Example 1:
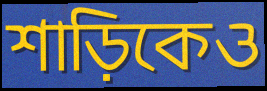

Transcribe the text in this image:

শাড়িকেও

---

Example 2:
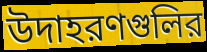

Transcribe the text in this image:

উদাহরণগুলির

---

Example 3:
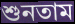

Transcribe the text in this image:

শুনতাম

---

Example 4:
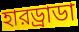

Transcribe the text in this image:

হারড্রাডা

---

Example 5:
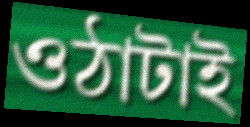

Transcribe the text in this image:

ওঠাটাই